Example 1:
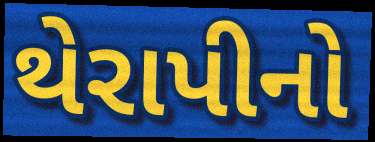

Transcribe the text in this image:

થેરાપીનો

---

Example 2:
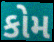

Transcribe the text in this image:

કોમ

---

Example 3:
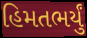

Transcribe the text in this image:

હિમતભર્યું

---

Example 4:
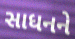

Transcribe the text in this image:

સાધનને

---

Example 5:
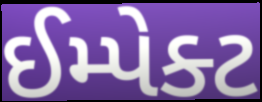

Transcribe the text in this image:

ઈમ્પેક્ટ